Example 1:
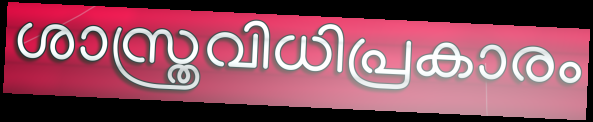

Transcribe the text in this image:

ശാസ്ത്രവിധിപ്രകാരം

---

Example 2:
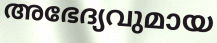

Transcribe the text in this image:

അഭേദ്യവുമായ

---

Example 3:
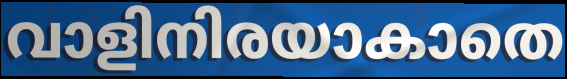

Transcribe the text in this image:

വാളിനിരയാകാതെ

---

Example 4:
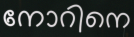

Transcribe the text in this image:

നോറിനെ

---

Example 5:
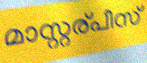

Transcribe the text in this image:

മാസ്റ്റര്പീസ്